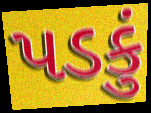
પડકું